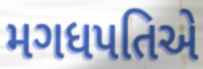
મગધપતિએ